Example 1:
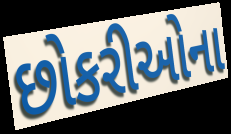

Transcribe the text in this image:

છોકરીઓના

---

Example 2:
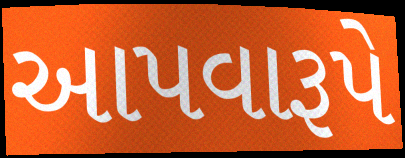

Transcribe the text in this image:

આપવારૂપે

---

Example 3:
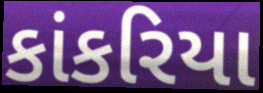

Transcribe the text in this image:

કાંકરિયા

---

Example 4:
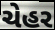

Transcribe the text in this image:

ચેહર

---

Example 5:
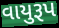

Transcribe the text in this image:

વાયુરૂપ